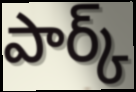
పార్క్